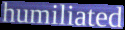
humiliated